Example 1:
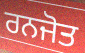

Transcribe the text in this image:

ਰਨਜੋਤ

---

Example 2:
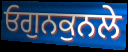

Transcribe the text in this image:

ਓਗੁਨਕੁਨਲੇ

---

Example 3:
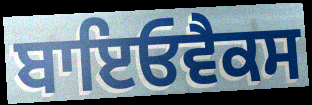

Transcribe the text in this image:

ਬਾਇਓਵੈਕਸ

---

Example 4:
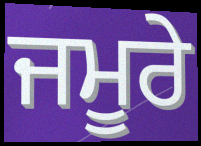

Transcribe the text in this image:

ਜਮੂਰੇ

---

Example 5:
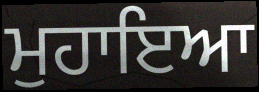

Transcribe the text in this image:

ਮੁਹਾਇਆ